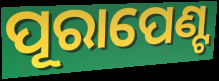
ପୂରାପେଣ୍ଟ